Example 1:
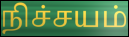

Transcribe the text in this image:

நிச்சயம்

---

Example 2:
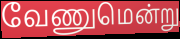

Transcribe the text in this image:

வேணுமென்று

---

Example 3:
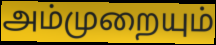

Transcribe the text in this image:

அம்முறையும்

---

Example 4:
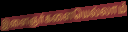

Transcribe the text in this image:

இளைஞர்களையெல்லாம்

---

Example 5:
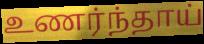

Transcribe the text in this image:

உணர்ந்தாய்